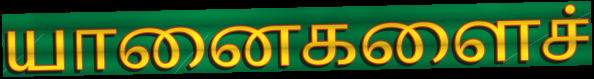
யானைகளைச்